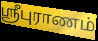
ஸ்ரீபுராணம்